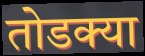
तोडक्‍या